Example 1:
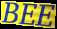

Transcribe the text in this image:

BEE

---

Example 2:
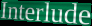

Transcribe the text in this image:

Interlude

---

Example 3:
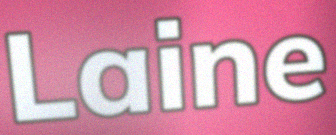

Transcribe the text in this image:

Laine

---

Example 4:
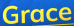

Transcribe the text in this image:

Grace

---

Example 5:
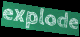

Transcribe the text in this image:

explode